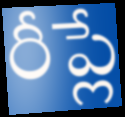
రీప్లే